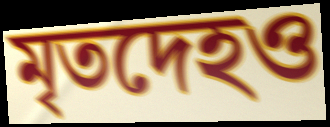
মৃতদেহও